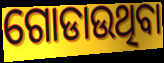
ଗୋଡାଉଥିବା